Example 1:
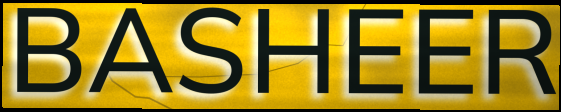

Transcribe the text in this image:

BASHEER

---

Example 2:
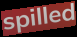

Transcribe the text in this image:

spilled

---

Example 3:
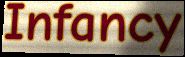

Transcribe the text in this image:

Infancy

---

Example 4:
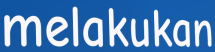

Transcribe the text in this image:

melakukan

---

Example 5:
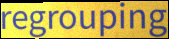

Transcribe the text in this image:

regrouping